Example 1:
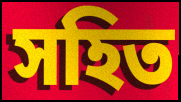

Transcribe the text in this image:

সহিত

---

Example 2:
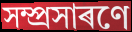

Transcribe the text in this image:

সম্প্ৰসাৰণে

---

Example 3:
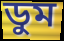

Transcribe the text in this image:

ডুম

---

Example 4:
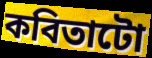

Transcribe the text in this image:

কবিতাটো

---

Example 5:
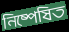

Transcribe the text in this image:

নিষ্পেষিত